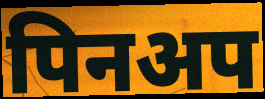
पिनअप